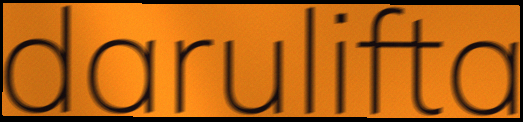
darulifta